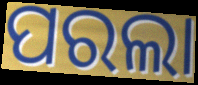
ପରଲା